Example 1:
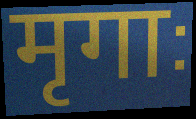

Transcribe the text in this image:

मृगाः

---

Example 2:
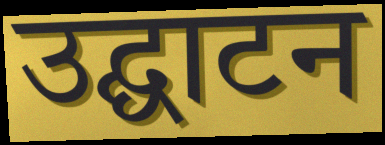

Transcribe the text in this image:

उद्घाटन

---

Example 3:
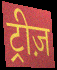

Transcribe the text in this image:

ट्रीज़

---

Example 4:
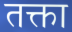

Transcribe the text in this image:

तक्ता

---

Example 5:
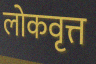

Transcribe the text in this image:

लोकवृत्त